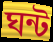
ঘন্ট